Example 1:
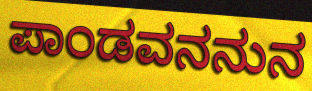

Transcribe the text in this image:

ಪಾಂಡವನನುನ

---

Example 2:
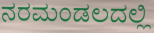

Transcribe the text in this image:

ನರಮಂಡಲದಲ್ಲಿ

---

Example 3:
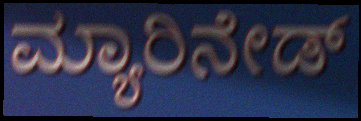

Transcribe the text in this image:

ಮ್ಯಾರಿನೇಡ್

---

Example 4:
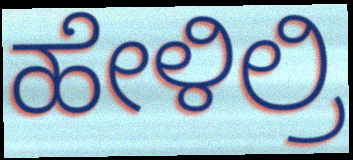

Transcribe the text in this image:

ಹೇಳಿಲ್ರಿ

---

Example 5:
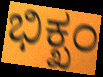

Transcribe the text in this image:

ಭಿಕ್ಖಂ